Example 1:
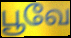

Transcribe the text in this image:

பூவே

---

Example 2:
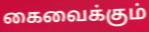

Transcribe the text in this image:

கைவைக்கும்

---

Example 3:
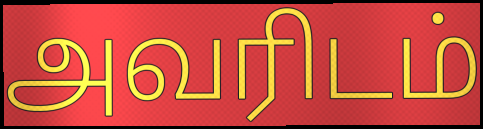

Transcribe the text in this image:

அவரிடம்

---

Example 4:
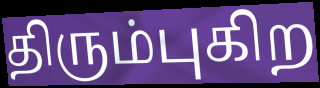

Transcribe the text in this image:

திரும்புகிற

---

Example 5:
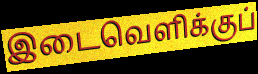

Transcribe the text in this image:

இடைவெளிக்குப்